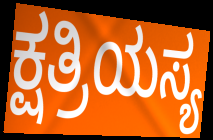
ಕ್ಷತ್ರಿಯಸ್ಯ